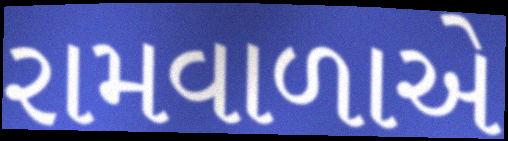
રામવાળાએ